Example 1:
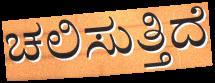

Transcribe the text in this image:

ಚಲಿಸುತ್ತಿದೆ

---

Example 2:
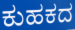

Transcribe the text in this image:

ಕುಹಕದ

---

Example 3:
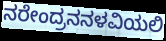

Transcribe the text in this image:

ನರೇಂದ್ರನನಳವಿಯಲಿ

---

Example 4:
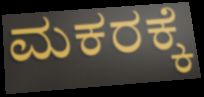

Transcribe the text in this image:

ಮಕರಕ್ಕೆ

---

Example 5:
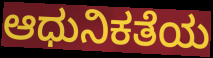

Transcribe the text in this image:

ಆಧುನಿಕತೆಯ